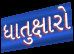
ધાતુક્ષારો